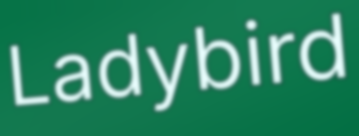
Ladybird